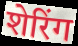
शेरिंग